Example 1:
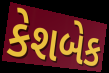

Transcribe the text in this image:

કેશબેક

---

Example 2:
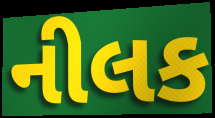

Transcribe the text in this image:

નીલક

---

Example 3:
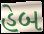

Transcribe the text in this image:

હેબ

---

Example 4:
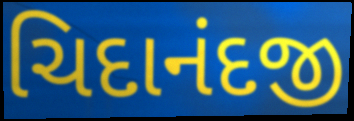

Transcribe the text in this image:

ચિદાનંદજી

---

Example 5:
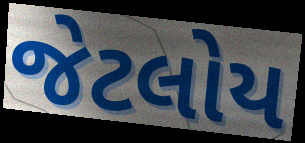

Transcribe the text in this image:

જેટલોય